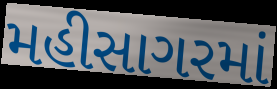
મહીસાગરમાં